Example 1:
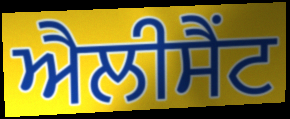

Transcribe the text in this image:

ਐਲੀਸੈਂਟ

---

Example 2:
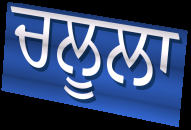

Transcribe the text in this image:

ਚਲੂਲਾ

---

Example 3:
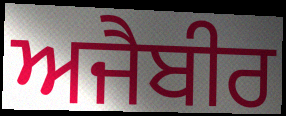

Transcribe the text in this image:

ਅਜੈਬੀਰ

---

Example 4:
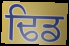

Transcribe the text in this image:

ਢਿਡ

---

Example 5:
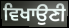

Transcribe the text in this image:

ਵਿਖਾਉਣੀ